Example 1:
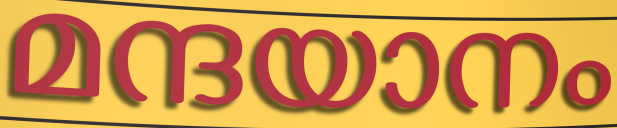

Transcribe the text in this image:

മന്ദയാനം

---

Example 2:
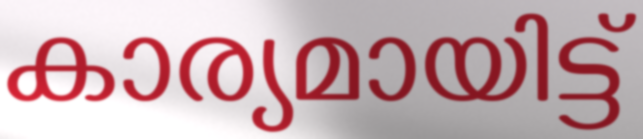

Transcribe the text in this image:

കാര്യമായിട്ട്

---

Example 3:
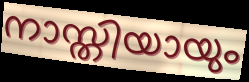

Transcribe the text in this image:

നാസ്തിയായും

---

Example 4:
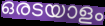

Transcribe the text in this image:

ഒരടയാളം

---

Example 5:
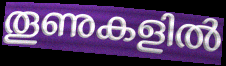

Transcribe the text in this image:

തൂണുകളിൽ